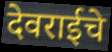
देवराईचे